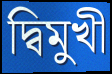
দ্বিমুখী